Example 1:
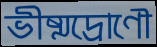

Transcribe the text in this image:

ভীষ্মদ্রোণৌ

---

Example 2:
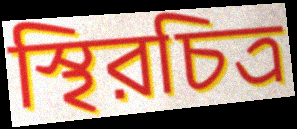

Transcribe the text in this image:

স্থিরচিত্র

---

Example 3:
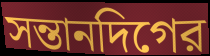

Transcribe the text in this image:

সন্তানদিগের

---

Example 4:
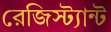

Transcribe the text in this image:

রেজিস্ট্যান্ট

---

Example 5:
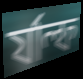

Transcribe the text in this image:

র্যাল্ফ